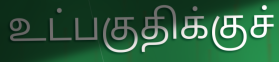
உட்பகுதிக்குச்